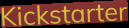
Kickstarter